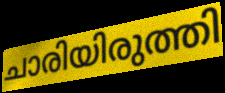
ചാരിയിരുത്തി